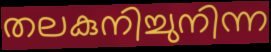
തലകുനിച്ചുനിന്ന